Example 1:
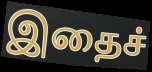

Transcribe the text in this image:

இதைச்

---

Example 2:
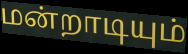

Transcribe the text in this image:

மன்றாடியும்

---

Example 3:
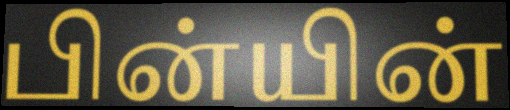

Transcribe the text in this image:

பின்யின்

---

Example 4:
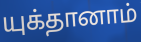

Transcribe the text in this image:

யுக்தானாம்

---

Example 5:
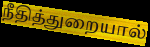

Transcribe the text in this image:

நீதித்துறையால்